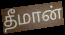
தீமான்